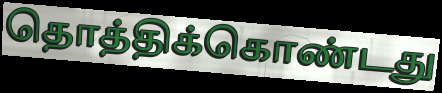
தொத்திக்கொண்டது